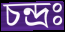
চন্দ্রঃ